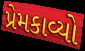
પ્રેમકાવ્યો